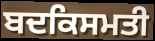
ਬਦਕਿਸਮਤੀ